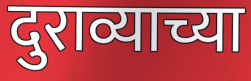
दुराव्याच्या